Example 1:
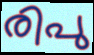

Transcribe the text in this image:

രിപു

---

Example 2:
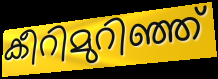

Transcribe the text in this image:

കീറിമുറിഞ്ഞ്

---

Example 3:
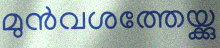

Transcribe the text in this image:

മുൻവശത്തേയ്ക്കു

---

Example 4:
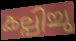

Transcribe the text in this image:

കല്പിച്ചു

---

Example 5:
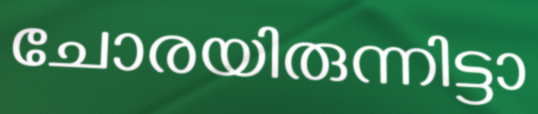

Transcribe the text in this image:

ചോരയിരുന്നിട്ടാ